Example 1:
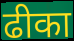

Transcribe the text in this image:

ढीका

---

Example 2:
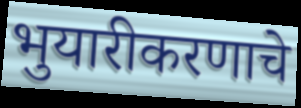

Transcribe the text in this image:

भुयारीकरणाचे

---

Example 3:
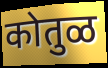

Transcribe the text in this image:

कोतुळ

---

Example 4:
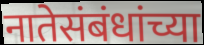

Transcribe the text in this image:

नातेसंबंधांच्या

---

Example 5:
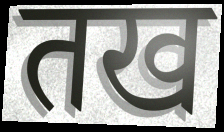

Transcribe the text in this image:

तख